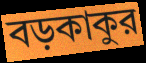
বড়কাকুর